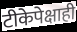
टीकेपेक्षाही